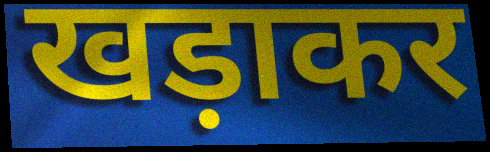
खड़ाकर